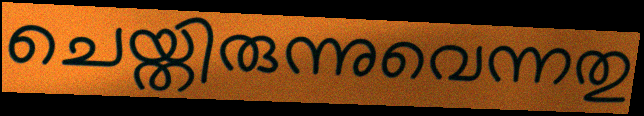
ചെയ്തിരുന്നുവെന്നതു